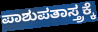
ಪಾಶುಪತಾಸ್ತ್ರಕ್ಕೆ